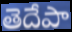
తెదేపా